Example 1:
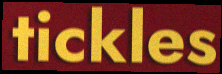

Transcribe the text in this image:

tickles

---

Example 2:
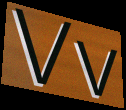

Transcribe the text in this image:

Vv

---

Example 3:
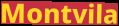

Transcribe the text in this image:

Montvila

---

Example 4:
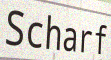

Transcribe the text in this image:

Scharf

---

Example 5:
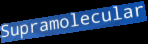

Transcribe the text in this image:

Supramolecular